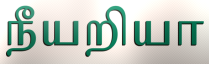
நீயறியா